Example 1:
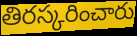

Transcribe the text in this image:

తిరస్కరించారు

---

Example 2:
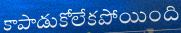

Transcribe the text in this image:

కాపాడుకోలేకపోయింది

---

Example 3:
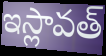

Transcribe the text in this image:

ఇస్లావత్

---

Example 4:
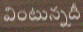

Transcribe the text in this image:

వింటున్నదీ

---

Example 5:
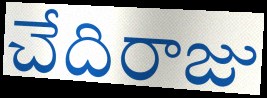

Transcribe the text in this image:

చేదిరాజు